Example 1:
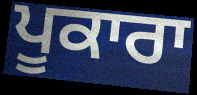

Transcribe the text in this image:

ਪੂਕਾਰਾ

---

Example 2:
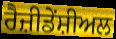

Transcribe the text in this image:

ਰੈਜ਼ੀਡੇਂਸ਼ੀਅਲ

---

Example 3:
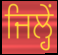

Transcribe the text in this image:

ਜਿਲ੍ਹੇਂ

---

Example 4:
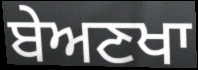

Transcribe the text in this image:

ਬੇਅਣਖਾ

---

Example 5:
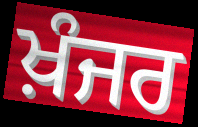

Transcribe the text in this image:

ਖ਼ੰਜਰ